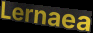
Lernaea